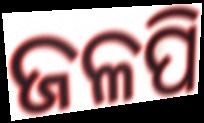
ଜଳପି